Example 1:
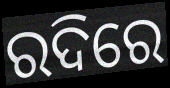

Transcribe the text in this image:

ରଦିରେ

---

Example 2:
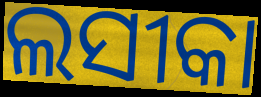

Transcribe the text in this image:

ଲସୀକା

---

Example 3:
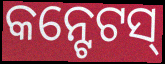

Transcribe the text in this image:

କନ୍ଟେଟସ୍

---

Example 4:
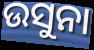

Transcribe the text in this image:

ଉସୁନା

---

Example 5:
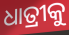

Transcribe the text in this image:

ଧାତ୍ରୀକୁ